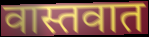
वास्तवात